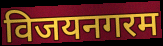
विजयनगरम